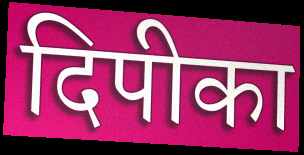
दिपीका